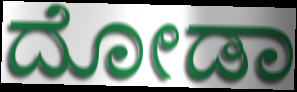
ದೋಡಾ